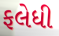
ફલેધી